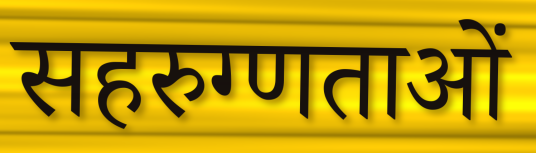
सहरुग्णताओं